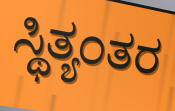
ಸ್ಥಿತ್ಯಂತರ